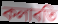
কলাবতি